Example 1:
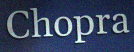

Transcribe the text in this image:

Chopra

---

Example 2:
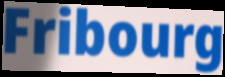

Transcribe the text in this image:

Fribourg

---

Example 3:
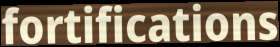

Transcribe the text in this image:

fortifications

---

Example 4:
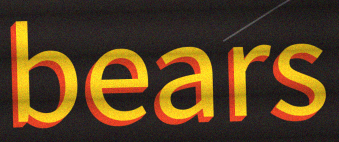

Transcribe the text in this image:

bears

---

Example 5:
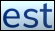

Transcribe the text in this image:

est